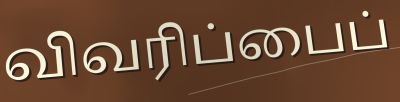
விவரிப்பைப்